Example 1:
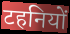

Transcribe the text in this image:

टहनियों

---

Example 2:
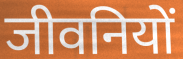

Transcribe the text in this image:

जीवनियों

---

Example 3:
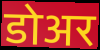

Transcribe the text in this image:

डोअर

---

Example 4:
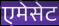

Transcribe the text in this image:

एमेसेट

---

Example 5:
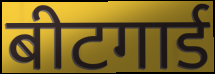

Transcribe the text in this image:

बीटगार्ड